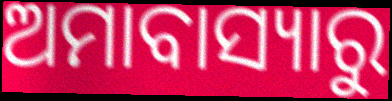
ଅମାବାସ୍ୟାରୁ